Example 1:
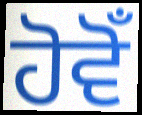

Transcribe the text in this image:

ਹੋਵੋਁ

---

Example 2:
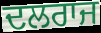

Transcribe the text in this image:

ਦਲਰਾਜ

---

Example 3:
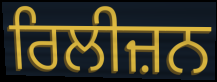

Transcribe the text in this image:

ਰਿਲੀਜ਼ਨ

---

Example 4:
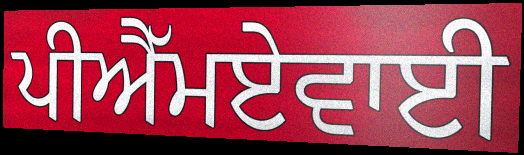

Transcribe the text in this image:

ਪੀਐੱਮਏਵਾਈ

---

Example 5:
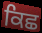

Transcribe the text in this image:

ਕਿਛ